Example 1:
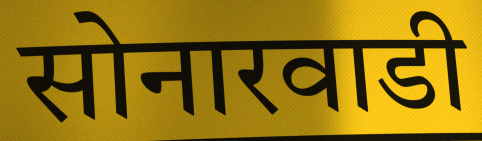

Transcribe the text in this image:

सोनारवाडी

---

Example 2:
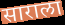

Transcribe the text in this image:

साराला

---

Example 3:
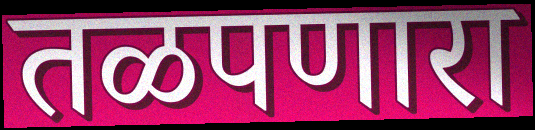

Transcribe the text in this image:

तळपणारा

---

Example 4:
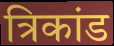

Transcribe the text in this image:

त्रिकांड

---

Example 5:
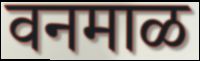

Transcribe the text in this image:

वनमाळ